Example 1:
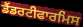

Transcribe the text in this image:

ਡੈਂਡਰਟੀਫਾਰਮਿਸ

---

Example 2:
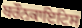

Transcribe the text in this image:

ਬਰੌਨਕਾਇਟਿਸ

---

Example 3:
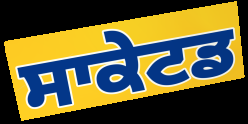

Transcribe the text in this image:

ਸਾਕੇਟਡ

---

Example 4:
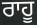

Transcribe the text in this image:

ਰਾਹੂ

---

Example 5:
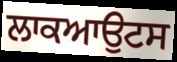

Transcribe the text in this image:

ਲਾਕਆਉਟਸ